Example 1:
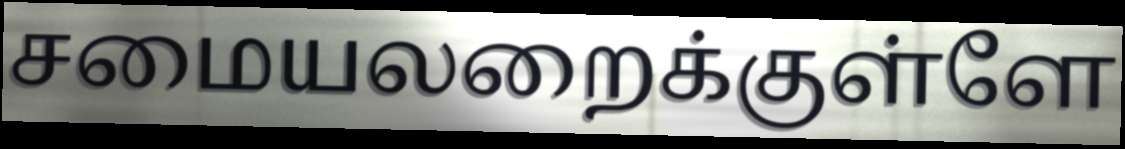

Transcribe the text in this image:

சமையலறைக்குள்ளே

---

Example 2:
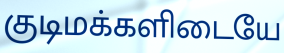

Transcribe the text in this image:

குடிமக்களிடையே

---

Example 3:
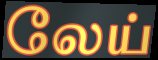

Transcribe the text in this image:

லேய்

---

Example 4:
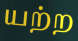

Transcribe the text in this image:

யற்ற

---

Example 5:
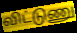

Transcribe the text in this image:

விட்டுணு